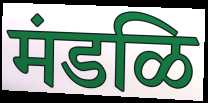
मंडळि